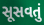
સૂસવતું